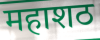
महाशठ